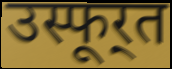
उस्फूर्त